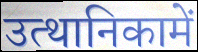
उत्थानिकामें